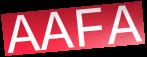
AAFA